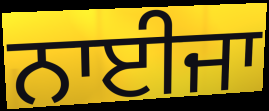
ਨਾਈਜਾ